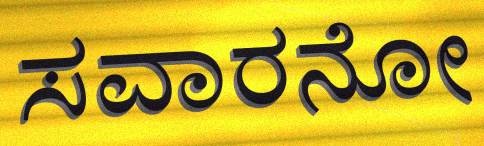
ಸವಾರನೋ